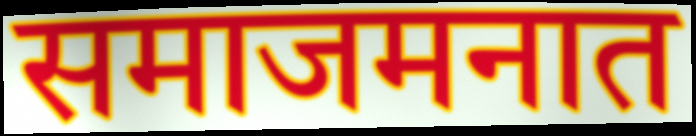
समाजमनात